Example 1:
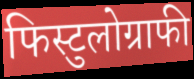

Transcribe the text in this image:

फिस्टुलोग्राफी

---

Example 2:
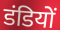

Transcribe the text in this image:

डंडियों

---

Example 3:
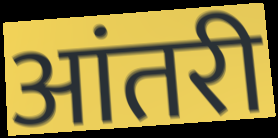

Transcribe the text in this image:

आंतरी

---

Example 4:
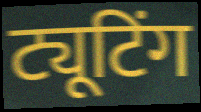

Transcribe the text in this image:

ट्यूटिंग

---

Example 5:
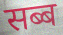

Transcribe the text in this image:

सब्ब